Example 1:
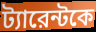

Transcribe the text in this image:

ট্যারেন্টকে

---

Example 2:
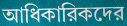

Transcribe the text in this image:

আধিকারিকদের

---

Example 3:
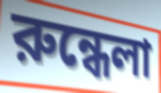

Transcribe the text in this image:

রুন্ধেলা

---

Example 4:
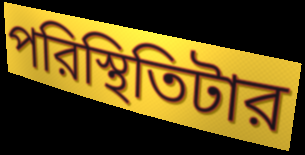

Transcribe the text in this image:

পরিস্থিতিটার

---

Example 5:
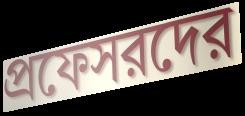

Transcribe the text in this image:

প্রফেসরদের